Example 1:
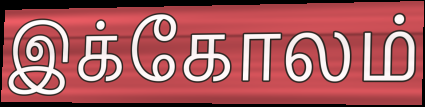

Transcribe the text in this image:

இக்கோலம்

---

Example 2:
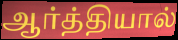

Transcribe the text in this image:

ஆர்த்தியால்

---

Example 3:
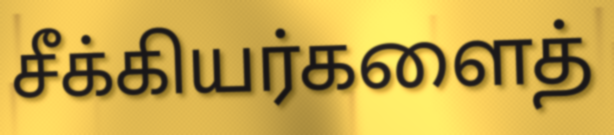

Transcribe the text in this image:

சீக்கியர்களைத்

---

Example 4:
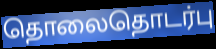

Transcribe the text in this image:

தொலைதொடர்பு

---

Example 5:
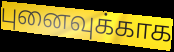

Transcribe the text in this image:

புனைவுக்காக